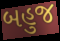
બહુજ